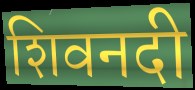
शिवनदी